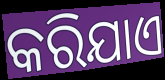
କରିଯାଏ